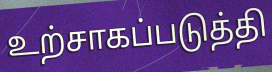
உற்சாகப்படுத்தி